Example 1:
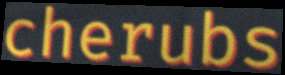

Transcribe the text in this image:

cherubs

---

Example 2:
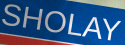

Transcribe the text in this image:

SHOLAY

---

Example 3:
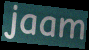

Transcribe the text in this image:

jaam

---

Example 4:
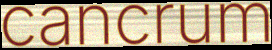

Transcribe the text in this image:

cancrum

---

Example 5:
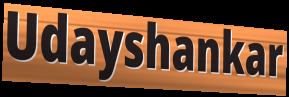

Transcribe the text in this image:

Udayshankar